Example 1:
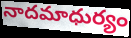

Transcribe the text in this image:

నాదమాధుర్యం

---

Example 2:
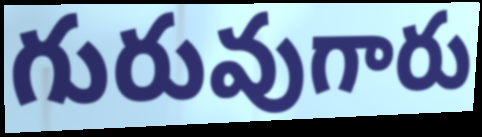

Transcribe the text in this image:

గురువుగారు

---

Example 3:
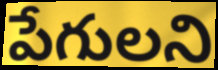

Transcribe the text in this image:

పేగులని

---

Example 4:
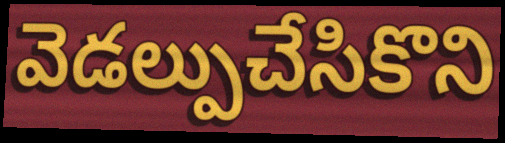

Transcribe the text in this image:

వెడల్పుచేసికొని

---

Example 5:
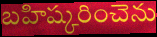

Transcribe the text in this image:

బహిష్కరించెను